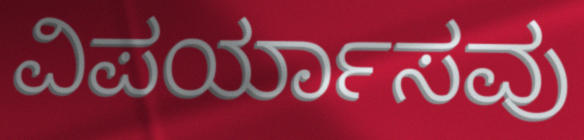
ವಿಪರ್ಯಾಸವು